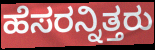
ಹೆಸರನ್ನಿತ್ತರು